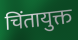
चिंतायुक्त